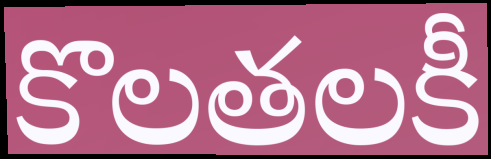
కొలతలకీ